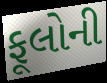
ફૂલોની